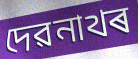
দেৱনাথৰ